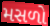
મસળો